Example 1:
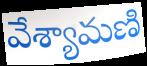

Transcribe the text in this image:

వేశ్యామణి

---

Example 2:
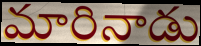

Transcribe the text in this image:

మారినాడు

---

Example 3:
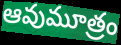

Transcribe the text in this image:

ఆవుమూత్రం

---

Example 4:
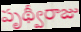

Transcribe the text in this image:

పృథ్వీరాజు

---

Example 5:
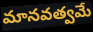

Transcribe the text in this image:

మానవత్వమే